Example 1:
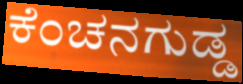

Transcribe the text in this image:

ಕೆಂಚನಗುಡ್ಡ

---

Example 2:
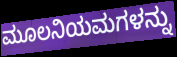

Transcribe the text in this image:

ಮೂಲನಿಯಮಗಳನ್ನು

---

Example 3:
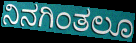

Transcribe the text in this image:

ನಿನಗಿಂತಲೂ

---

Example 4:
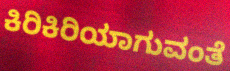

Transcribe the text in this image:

ಕಿರಿಕಿರಿಯಾಗುವಂತೆ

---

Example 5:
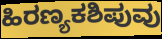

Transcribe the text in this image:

ಹಿರಣ್ಯಕಶಿಪುವು